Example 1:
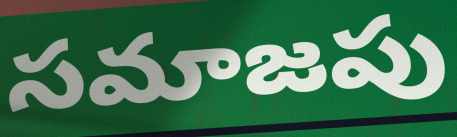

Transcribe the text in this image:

సమాజపు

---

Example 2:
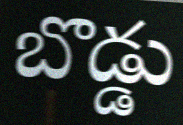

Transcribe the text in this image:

బొడ్డు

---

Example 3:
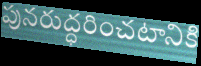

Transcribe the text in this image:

పునరుద్ధరించటానికి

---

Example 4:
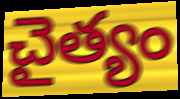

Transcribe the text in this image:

చైత్యం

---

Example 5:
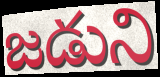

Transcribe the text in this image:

జడుని